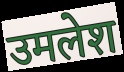
उमलेश